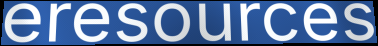
eresources